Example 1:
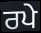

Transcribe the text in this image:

ਰਪੇ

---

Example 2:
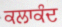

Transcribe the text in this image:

ਕਲਾਕੰਦ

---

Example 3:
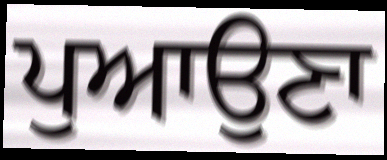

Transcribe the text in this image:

ਪੁਆਉਣਾ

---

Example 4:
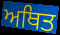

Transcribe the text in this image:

ਅਥਿਤ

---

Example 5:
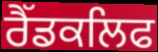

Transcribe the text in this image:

ਰੈੱਡਕਲਿਫ